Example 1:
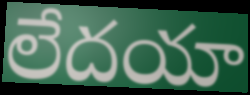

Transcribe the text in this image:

లేదయా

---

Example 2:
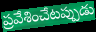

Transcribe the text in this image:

ప్రవేశించేటప్పుడు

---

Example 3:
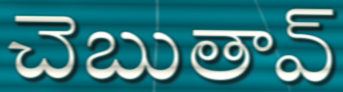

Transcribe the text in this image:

చెబుతావ్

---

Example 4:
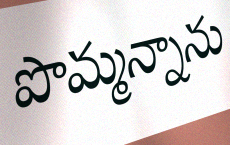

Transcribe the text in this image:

పొమ్మన్నాను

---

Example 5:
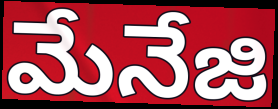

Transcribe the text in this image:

మేనేజి